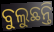
ବୁଲୁଛନ୍ତି